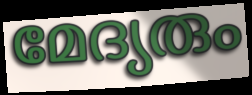
മേദ്യരും